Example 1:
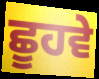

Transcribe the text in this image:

ਛੂਹਵੇ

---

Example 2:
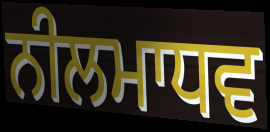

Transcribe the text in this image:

ਨੀਲਮਾਧਵ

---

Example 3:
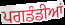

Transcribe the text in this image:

ਪਗਡੰਡੀਆਂ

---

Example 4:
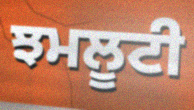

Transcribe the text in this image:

ਝਮਲੂਟੀ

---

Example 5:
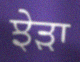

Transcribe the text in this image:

ਝੇੜਾ